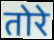
तोरे